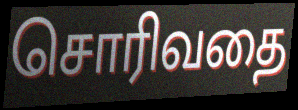
சொரிவதை